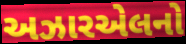
અઝારએલનો